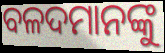
ବଳଦମାନଙ୍କୁ